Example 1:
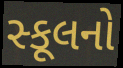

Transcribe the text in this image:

સ્કૂલનો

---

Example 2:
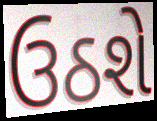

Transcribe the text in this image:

ઉઠશે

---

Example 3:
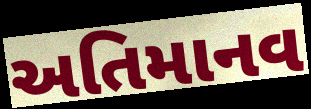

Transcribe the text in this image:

અતિમાનવ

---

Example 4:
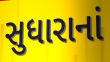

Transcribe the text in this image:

સુધારાનાં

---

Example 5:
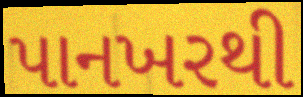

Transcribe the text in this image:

પાનખરથી